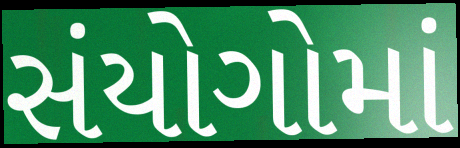
સંયોગોમાં